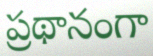
ప్రథానంగా